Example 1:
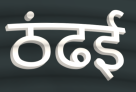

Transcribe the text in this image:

ठंढई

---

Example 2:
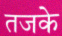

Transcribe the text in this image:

तजके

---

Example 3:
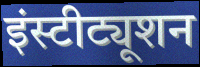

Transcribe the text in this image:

इंस्‍टीट्यूशन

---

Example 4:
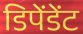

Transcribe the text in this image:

डिपेंडेंट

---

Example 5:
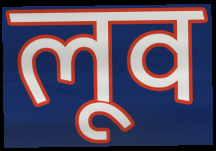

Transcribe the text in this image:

लूव